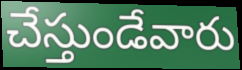
చేస్తుండేవారు